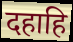
दहाहि